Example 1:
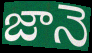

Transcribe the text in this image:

జానె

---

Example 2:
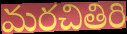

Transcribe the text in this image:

మరచితిరి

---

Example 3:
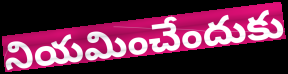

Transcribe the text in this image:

నియమించేందుకు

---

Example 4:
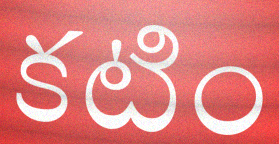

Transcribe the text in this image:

కటిం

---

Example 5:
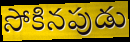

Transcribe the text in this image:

సోకినపుడు